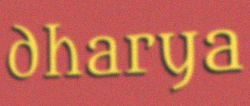
dharya